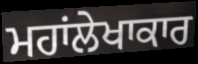
ਮਹਾਂਲੇਖਾਕਾਰ